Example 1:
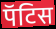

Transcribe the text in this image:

पॅटिस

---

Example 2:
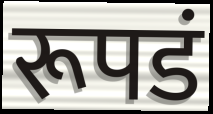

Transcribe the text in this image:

रूपडं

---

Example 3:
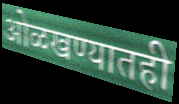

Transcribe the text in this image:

ओळखण्यातही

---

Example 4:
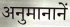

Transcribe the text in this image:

अनुमानानें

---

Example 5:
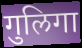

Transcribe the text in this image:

गुलिगा